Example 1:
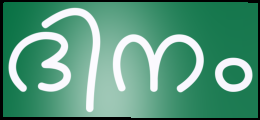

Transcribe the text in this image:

ദിനം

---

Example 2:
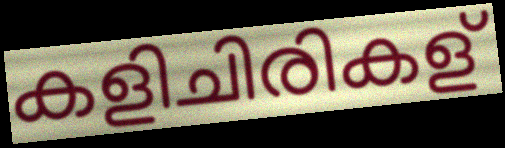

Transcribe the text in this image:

കളിചിരികള്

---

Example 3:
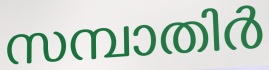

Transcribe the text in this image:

സമ്പാതിർ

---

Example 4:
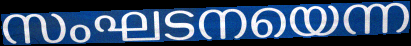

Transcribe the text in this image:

സംഘടനയെന്ന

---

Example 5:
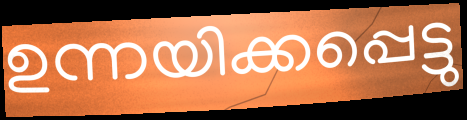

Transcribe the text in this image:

ഉന്നയിക്കപ്പെട്ടു